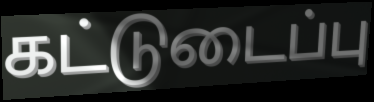
கட்டுடைப்பு